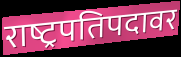
राष्ट्रपतिपदावर